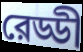
রেড্ডী